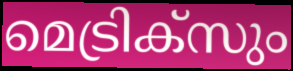
മെട്രിക്സും